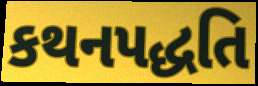
કથનપદ્ધતિ